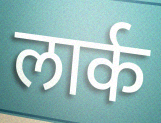
लार्क